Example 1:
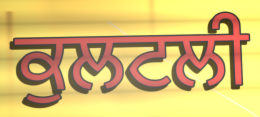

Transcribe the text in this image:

ਕੁਲਟਲੀ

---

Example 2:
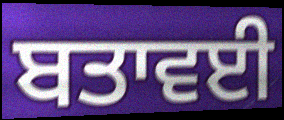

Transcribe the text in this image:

ਬਤਾਵਈ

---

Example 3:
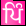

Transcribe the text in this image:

ਪਿੰ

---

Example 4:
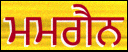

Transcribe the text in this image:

ਮਮਗੈਨ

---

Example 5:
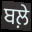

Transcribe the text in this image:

ਬਲ਼ੇ